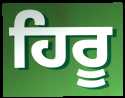
ਹਿਰੂ